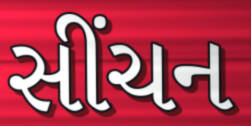
સીંચન